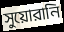
সুয়োরানি